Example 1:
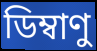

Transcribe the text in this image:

ডিম্বাণু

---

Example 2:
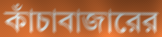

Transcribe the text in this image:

কাঁচাবাজারের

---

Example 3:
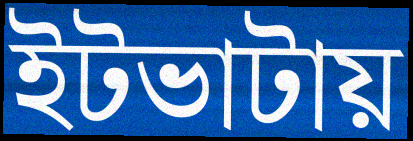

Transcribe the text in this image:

ইটভাটায়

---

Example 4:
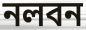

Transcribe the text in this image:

নলবন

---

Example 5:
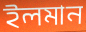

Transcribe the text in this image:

ইলমান